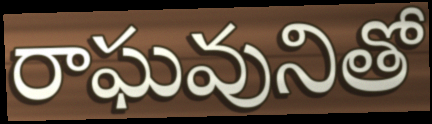
రాఘవునితో